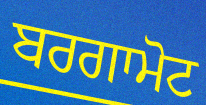
ਬਰਗਾਮੋਟ